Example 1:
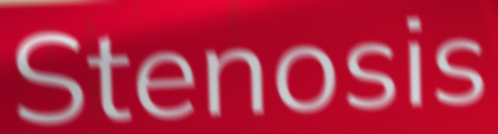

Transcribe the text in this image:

Stenosis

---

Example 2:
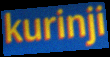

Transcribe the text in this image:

kurinji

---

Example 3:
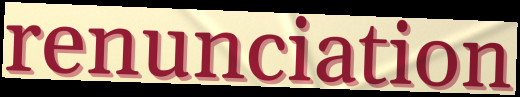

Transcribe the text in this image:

renunciation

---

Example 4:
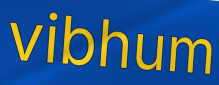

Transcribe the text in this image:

vibhum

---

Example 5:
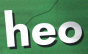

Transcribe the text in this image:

heo